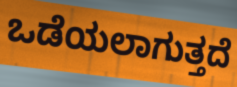
ಒಡೆಯಲಾಗುತ್ತದೆ